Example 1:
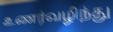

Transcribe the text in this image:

உணர்வழிந்து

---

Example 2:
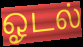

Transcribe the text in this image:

ஓடல்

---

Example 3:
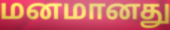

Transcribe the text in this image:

மனமானது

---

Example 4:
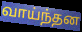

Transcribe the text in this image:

வாய்ந்தன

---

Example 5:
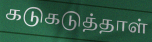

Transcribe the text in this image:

கடுகடுத்தாள்